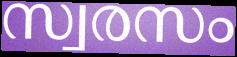
സ്വരസം